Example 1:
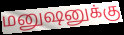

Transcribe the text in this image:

மனுஷனுக்கு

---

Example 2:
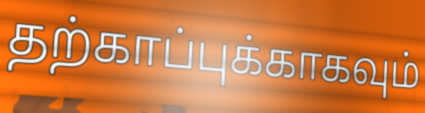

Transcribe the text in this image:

தற்காப்புக்காகவும்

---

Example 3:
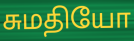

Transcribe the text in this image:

சுமதியோ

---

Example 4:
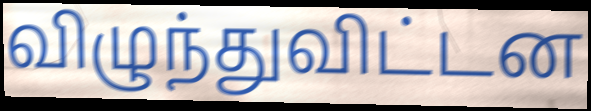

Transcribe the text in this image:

விழுந்துவிட்டன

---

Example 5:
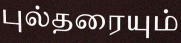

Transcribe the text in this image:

புல்தரையும்